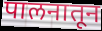
पालनातून